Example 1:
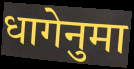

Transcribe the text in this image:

धागेनुमा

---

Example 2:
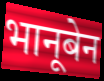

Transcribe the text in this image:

भानूबेन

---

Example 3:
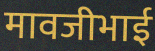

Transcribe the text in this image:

मावजीभाई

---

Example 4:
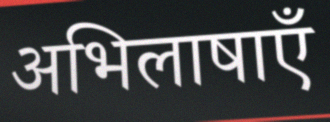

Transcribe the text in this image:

अभिलाषाएँ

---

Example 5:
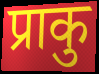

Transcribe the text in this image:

प्राकु